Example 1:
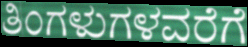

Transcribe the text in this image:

ತಿಂಗಳುಗಳವರೆಗೆ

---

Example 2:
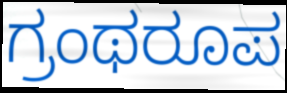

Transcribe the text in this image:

ಗ್ರಂಥರೂಪ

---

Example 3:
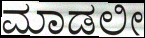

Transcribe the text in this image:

ಮಾಡಲೀ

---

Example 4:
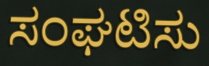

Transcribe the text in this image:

ಸಂಘಟಿಸು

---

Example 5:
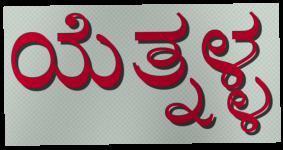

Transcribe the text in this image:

ಯೆತ್ನಳ್ಳ